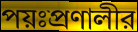
পয়ঃপ্রণালীর